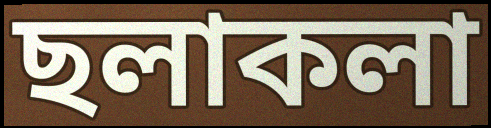
ছলাকলা